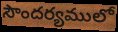
సౌందర్యములో